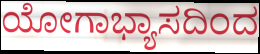
ಯೋಗಾಭ್ಯಾಸದಿಂದ